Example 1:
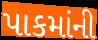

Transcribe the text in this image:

પાકમાંની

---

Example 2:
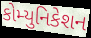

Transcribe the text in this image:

કોમ્યુનિકેશન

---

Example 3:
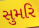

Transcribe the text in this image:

સુમરિ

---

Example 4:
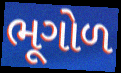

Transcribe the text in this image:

ભૂગોળ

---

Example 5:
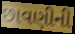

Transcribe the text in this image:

છાવણીની